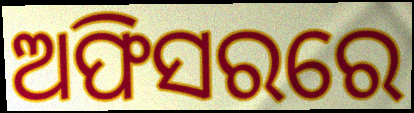
ଅଫିସରରେ